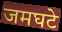
जमघटे